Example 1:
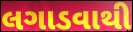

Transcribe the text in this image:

લગાડવાથી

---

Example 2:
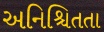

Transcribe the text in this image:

અનિશ્ચિતતા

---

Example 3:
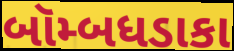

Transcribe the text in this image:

બૉમ્બધડાકા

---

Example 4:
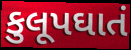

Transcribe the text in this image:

કુલૂપઘાતં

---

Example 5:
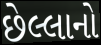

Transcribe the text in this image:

છેલ્લાનો